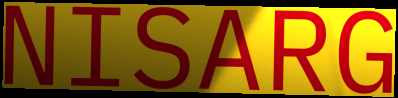
NISARG